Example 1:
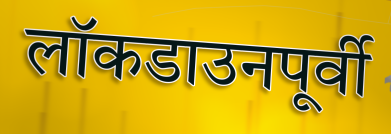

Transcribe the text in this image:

लॉकडाउनपूर्वी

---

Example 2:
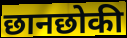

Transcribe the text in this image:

छानछोकी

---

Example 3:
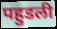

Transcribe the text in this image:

पहुडली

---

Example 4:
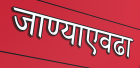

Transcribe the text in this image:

जाण्याएवढा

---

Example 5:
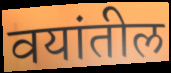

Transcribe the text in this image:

वयांतील